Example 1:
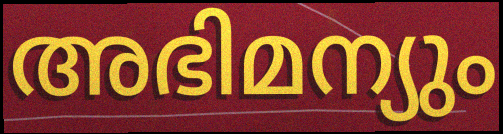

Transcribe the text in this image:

അഭിമന്യും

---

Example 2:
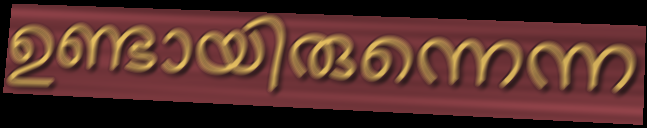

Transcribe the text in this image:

ഉണ്ടായിരുന്നെന്ന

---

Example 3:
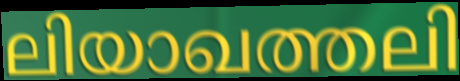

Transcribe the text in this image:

ലിയാഖത്തലി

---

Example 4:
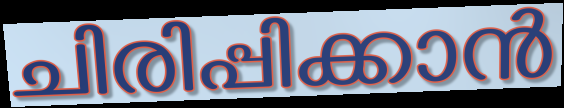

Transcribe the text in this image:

ചിരിപ്പിക്കാൻ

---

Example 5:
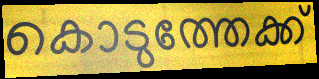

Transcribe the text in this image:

കൊടുത്തേക്ക്